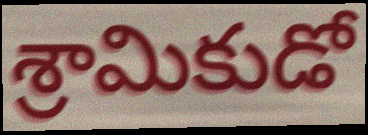
శ్రామికుడో